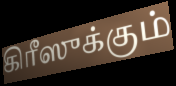
கிரீஸுக்கும்